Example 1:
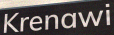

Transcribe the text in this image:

Krenawi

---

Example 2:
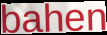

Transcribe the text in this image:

bahen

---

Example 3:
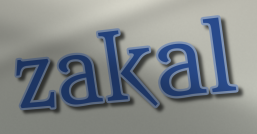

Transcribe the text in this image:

zakal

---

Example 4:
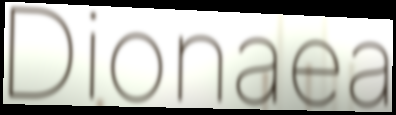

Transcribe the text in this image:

Dionaea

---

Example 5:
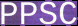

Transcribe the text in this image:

PPSC